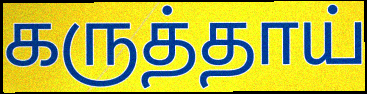
கருத்தாய்